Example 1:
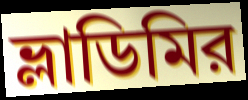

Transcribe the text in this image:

ভ্লাডিমির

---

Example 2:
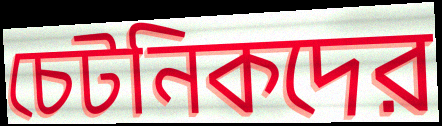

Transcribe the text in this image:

চেটনিকদের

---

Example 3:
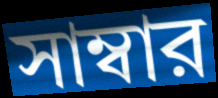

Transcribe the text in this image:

সাম্বার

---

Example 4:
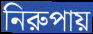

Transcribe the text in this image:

নিরুপায়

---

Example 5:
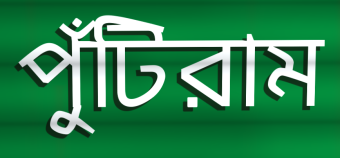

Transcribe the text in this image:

পুঁটিরাম